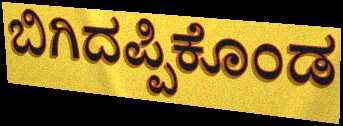
ಬಿಗಿದಪ್ಪಿಕೊಂಡ